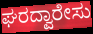
ಘರದ್ವಾರೇಸು